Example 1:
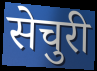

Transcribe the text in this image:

सेचुरी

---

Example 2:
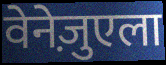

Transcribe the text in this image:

वेनेज़ुएला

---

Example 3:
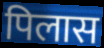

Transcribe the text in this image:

पिलास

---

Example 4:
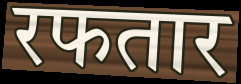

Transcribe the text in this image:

रफतार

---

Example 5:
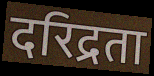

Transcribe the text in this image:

दरिद्रता